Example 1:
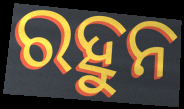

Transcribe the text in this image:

ରହୁନ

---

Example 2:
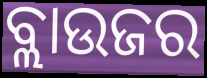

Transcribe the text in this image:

ବ୍ଲାଉଜର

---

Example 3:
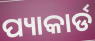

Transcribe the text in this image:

ପ୍ୟାକାର୍ଡ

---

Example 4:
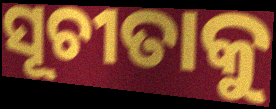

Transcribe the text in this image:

ସୂଚୀତାକୁ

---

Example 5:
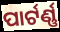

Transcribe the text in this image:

ପାର୍ଟର୍ଣ୍ଣ